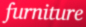
furniture